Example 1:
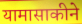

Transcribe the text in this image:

यामासाकीने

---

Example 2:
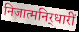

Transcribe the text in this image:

निजात्मनिर्धारीं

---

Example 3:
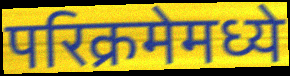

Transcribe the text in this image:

परिक्रमेमध्ये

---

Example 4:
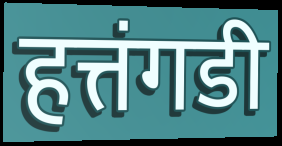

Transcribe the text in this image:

हत्तंगडी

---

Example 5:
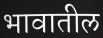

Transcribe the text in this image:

भावातील